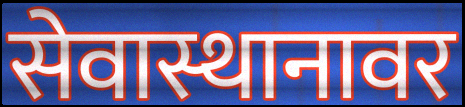
सेवास्थानावर